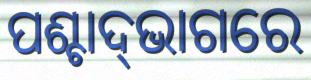
ପଶ୍ଚାଦ୍‌ଭାଗରେ